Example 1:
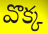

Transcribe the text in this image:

వొక్క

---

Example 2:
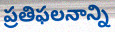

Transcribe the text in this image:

ప్రతిఫలనాన్ని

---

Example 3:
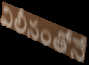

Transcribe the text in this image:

విలీనంతోనే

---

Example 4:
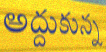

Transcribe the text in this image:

అద్దుకున్న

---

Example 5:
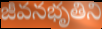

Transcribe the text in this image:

జీవనభృతిని